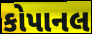
કોપાનલ